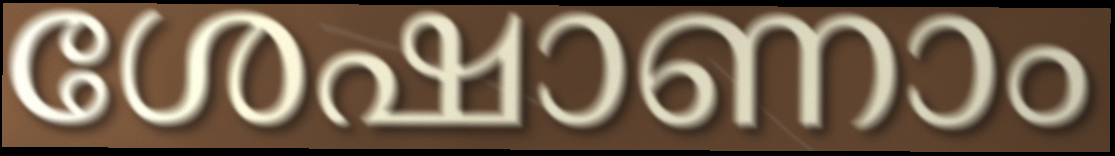
ശേഷാണാം